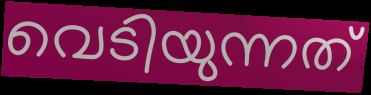
വെടിയുന്നത്